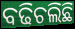
ବଢିଚଲିଛି